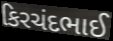
કિરચંદભાઈ